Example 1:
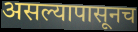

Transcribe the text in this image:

असल्यापासूनच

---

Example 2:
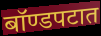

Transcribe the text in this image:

बॉण्डपटात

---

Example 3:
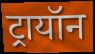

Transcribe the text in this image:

ट्रायॉन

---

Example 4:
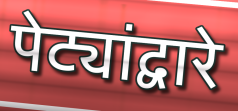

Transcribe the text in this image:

पेट्यांद्वारे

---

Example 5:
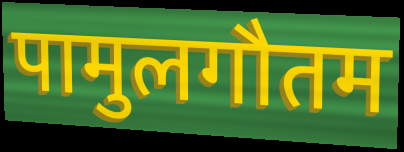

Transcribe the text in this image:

पामुलगौतम